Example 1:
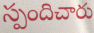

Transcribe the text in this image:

స్పందిచారు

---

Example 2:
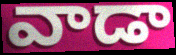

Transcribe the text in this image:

వాడా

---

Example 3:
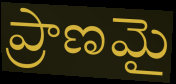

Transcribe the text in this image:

ప్రాణమై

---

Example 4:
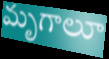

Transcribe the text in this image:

మృగాలూ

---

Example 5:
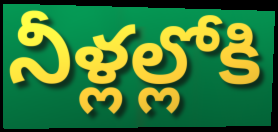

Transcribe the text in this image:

నీళ్లల్లోకి